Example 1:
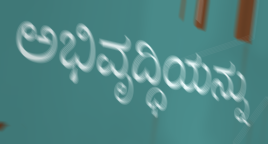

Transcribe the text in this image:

ಅಭಿವೃದ್ಧಿಯನ್ನು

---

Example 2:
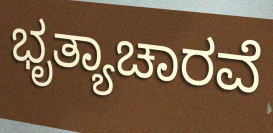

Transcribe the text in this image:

ಭೃತ್ಯಾಚಾರವೆ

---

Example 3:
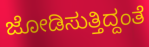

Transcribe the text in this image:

ಜೋಡಿಸುತ್ತಿದ್ದಂತೆ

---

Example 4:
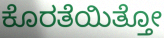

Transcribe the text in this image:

ಕೊರತೆಯಿತ್ತೋ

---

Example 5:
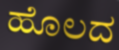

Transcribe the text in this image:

ಹೊಲದ